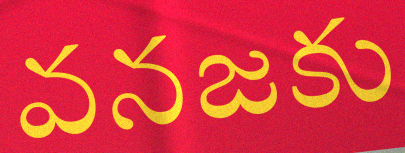
వనజకు